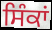
ਸਿੰਕਾਂ